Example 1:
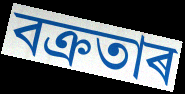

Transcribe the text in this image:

বক্ৰতাৰ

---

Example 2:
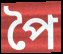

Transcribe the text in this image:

পৈ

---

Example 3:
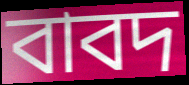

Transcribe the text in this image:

বাবদ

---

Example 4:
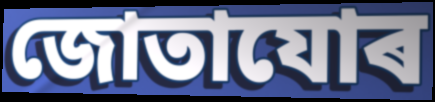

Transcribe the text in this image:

জোতাযোৰ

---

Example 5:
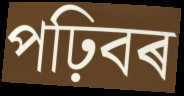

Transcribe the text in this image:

পঢ়িবৰ